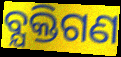
ବ୍ଯକ୍ତିଗଣ